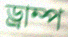
ড্রাম্প